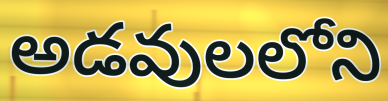
అడవులలోని